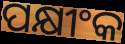
ପକ୍ଷୀଂକ